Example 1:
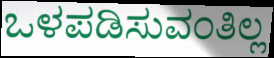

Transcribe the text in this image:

ಒಳಪಡಿಸುವಂತಿಲ್ಲ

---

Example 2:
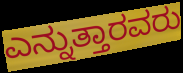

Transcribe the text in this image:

ಎನ್ನುತ್ತಾರವರು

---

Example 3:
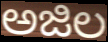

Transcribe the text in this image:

ಅಜಿಲ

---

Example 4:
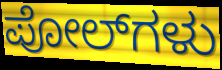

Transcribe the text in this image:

ಪೋಲ್‌ಗಳು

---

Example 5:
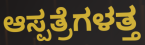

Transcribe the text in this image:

ಆಸ್ಪತ್ರೆಗಳತ್ತ